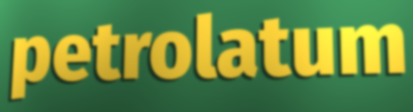
petrolatum